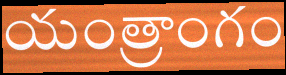
యంత్రాంగం